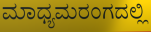
ಮಾಧ್ಯಮರಂಗದಲ್ಲಿ